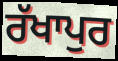
ਰੱਖਾਪੁਰ